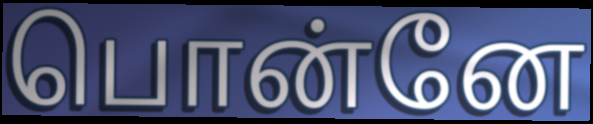
பொன்னே